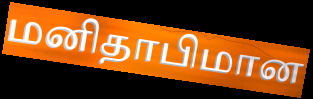
மனிதாபிமான